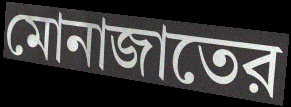
মোনাজাতের